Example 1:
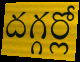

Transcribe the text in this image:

దగ్గర్లో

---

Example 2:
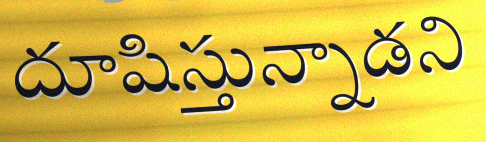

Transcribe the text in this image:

దూషిస్తున్నాడని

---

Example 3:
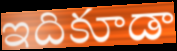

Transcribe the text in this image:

ఇదికూడా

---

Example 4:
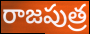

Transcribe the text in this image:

రాజపుత్ర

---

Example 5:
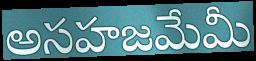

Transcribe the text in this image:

అసహజమేమీ